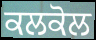
ਕਲਕੋਲ